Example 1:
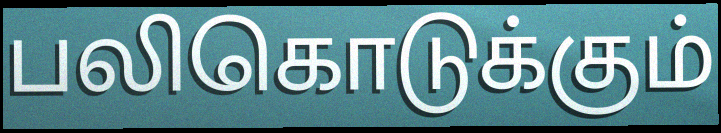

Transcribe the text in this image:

பலிகொடுக்கும்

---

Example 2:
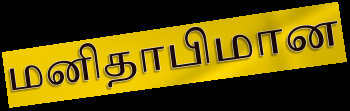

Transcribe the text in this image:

மனிதாபிமான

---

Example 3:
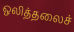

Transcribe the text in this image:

ஒலித்தலைச்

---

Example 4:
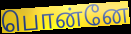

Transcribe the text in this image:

பொன்னே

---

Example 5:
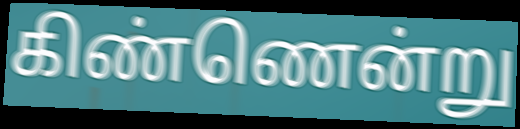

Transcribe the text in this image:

கிண்ணென்று